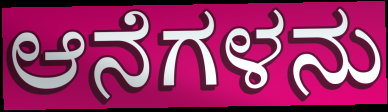
ಆನೆಗಳನು